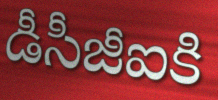
డీసీజీఐకి